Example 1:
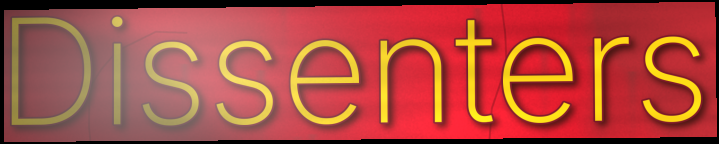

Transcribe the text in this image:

Dissenters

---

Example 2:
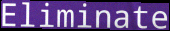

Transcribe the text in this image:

Eliminate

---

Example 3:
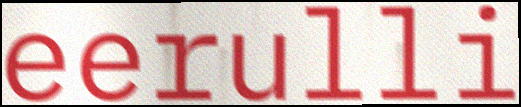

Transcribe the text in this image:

eerulli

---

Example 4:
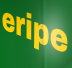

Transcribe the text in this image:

eripe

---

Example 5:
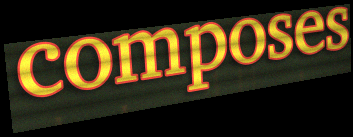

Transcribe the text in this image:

composes